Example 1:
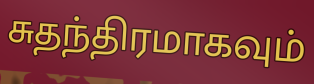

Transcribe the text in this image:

சுதந்திரமாகவும்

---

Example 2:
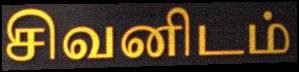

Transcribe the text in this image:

சிவனிடம்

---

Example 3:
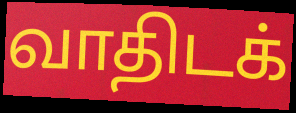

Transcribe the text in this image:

வாதிடக்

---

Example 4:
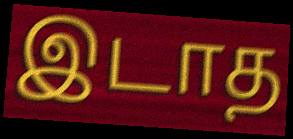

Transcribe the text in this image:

இடாத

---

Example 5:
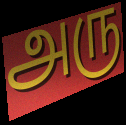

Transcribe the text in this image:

அரு